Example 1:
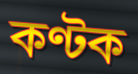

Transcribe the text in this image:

কণ্টক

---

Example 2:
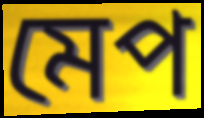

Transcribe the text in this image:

মেপ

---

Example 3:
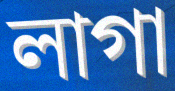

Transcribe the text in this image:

লাগা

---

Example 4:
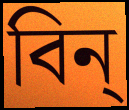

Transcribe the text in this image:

বিন্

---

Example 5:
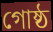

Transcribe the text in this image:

গোষ্ঠ